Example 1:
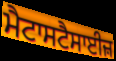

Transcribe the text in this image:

ਮੈਟਾਸਟੈਸਾਈਜ਼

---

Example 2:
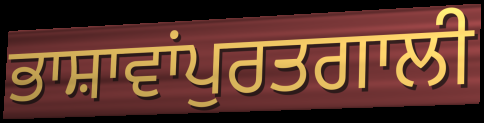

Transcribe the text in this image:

ਭਾਸ਼ਾਵਾਂਪੁਰਤਗਾਲੀ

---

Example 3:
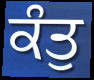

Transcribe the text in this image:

ਕੰਤੁ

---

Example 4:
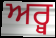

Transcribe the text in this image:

ਅਰ੍ਥ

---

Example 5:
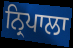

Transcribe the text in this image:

ਨ੍ਰਿਪਾਲਾ